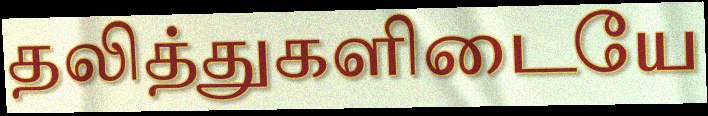
தலித்துகளிடையே